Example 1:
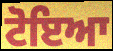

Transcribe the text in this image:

ਟੋਇਆ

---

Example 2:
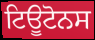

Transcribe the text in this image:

ਟਿਊਟੋਨਸ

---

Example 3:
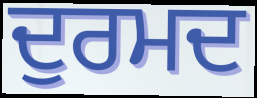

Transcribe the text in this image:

ਦੁਰਮਦ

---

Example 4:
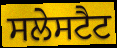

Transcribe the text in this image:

ਸਲੇਸਟੈਟ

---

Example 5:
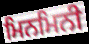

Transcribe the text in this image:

ਮਿਨਮਿਨੀ